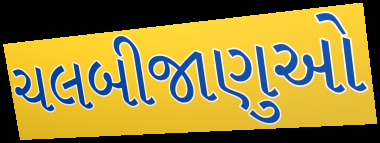
ચલબીજાણુઓ